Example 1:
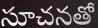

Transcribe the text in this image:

సూచనతో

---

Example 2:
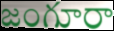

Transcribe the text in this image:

జంగూరా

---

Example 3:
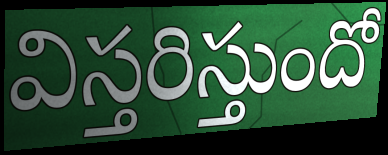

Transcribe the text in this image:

విస్తరిస్తుందో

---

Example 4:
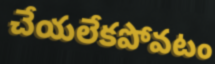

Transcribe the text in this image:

చేయలేకపోవటం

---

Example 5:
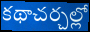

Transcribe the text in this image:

కథాచర్చల్లో